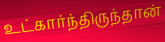
உட்கார்ந்திருந்தான்